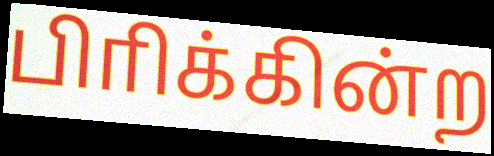
பிரிக்கின்ற